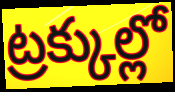
ట్రక్కుల్లో